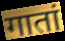
गातां